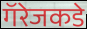
गॅरेजकडे